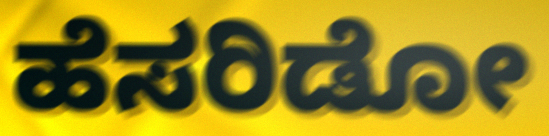
ಹೆಸರಿಡೋ